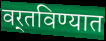
वर्तविण्यात